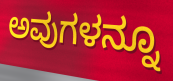
ಅವುಗಳನ್ನೂ